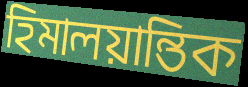
হিমালয়ান্তিক